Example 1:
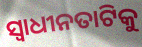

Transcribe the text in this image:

ସ୍ୱାଧୀନତାଟିକୁ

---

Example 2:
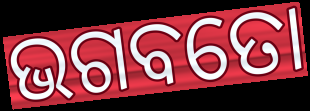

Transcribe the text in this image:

ଭଗବତୋ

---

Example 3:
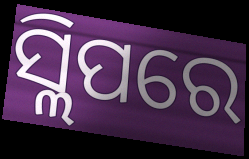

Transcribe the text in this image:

ସ୍ଲିପରେ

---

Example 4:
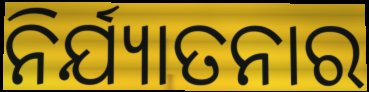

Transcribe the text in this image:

ନିର୍ଯ୍ୟାତନାର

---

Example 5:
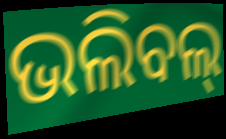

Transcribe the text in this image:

ଭଲିବଲ୍